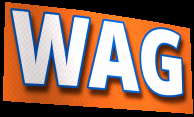
WAG